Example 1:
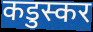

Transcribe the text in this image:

कडुस्कर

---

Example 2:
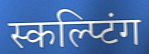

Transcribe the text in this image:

स्कल्प्टिंग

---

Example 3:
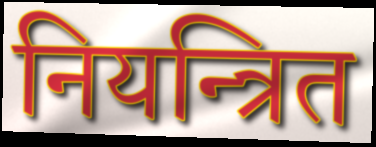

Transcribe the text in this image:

नियन्त्रित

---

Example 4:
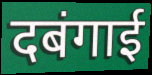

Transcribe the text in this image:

दबंगाई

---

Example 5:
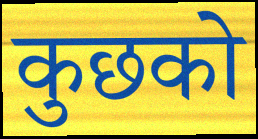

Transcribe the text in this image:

कुछको